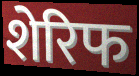
शेरिफ